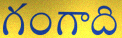
గంగాది